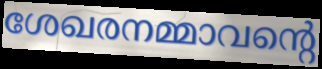
ശേഖരനമ്മാവന്റെ